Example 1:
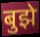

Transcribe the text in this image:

बुझे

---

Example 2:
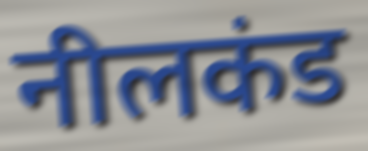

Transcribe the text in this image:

नीलकंड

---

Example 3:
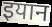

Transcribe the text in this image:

इयान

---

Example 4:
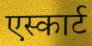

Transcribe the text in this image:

एस्कार्ट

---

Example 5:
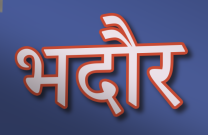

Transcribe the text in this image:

भदौर